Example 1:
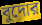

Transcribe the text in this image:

বুদোর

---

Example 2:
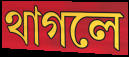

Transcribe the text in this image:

থাগলে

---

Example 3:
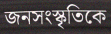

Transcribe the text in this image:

জনসংস্কৃতিকে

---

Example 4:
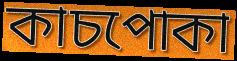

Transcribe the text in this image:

কাচপোকা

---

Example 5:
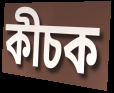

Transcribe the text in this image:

কীচক